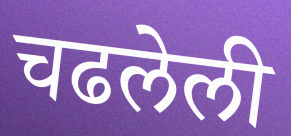
चढलेली